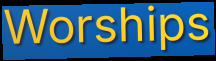
Worships